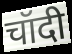
चॉदी